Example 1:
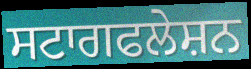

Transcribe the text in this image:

ਸਟਾਗਫਲੇਸ਼ਨ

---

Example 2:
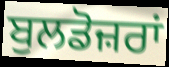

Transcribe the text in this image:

ਬੁਲਡੋਜ਼ਰਾਂ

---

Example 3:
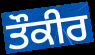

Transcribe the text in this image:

ਤੌਕੀਰ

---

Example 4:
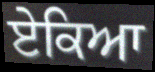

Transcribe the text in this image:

ਏਕਿਆ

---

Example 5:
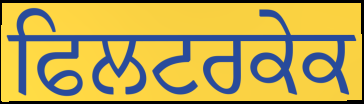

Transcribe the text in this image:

ਫਿਲਟਰਕੇਕ